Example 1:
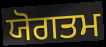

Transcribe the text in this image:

ਯੋਗਤਮ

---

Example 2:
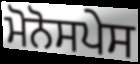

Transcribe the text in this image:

ਮੋਨੋਸਪੇਸ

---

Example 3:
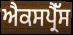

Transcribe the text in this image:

ਐਕਸਪ੍ਰੈੱਸ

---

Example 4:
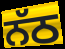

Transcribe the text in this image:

ਨੱਠ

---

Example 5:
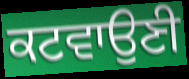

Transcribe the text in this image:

ਕਟਵਾਉਣੀ